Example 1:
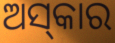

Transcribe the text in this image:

ଅସ୍‌କାର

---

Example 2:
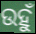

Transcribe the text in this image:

ଉହୁଁ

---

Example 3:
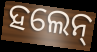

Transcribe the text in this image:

ହଲେନ୍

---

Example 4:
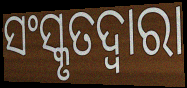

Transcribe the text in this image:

ସଂସ୍କୃତଦ୍ୱାରା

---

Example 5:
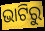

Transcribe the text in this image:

ଭାଟିରୁ